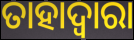
ତାହାଦ୍ୱାରା